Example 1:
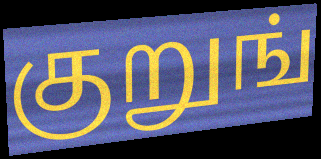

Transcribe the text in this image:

குறுங்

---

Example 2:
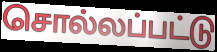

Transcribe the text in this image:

சொல்லப்பட்டு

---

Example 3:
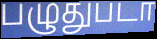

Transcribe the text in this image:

பழுதுபடா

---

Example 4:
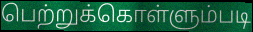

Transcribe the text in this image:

பெற்றுக்கொள்ளும்படி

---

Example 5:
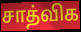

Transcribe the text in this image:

சாத்விக